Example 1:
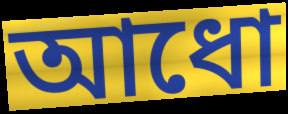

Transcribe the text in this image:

আধো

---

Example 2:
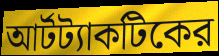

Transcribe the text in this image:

আর্টট্যাকটিকের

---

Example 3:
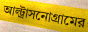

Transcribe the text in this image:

আল্ট্রাসনোগ্রামের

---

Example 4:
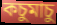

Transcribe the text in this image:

কচুমাচু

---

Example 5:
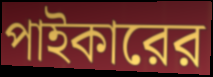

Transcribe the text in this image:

পাইকারের